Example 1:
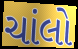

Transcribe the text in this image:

ચાંલો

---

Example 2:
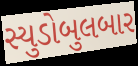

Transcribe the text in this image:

સ્યુડોબુલબાર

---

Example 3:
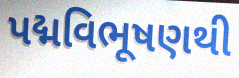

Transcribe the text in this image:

પદ્મવિભૂષણથી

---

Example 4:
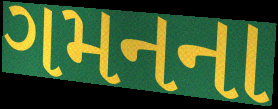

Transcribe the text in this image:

ગમનના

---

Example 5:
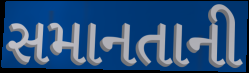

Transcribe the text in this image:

સમાનતાની